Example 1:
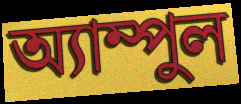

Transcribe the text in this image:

অ্যাম্পুল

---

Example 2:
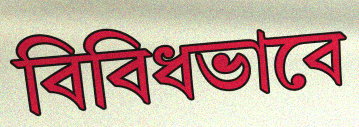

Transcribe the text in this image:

বিবিধভাবে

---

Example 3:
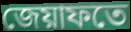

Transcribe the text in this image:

জেয়াফতে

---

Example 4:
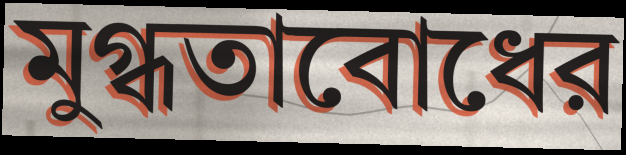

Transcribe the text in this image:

মুগ্ধতাবোধের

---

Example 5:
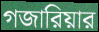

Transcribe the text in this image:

গজারিয়ার